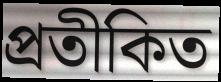
প্ৰতীকিত